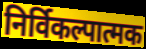
निर्विकल्पात्मक